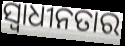
ସ୍ବାଧୀନତାର